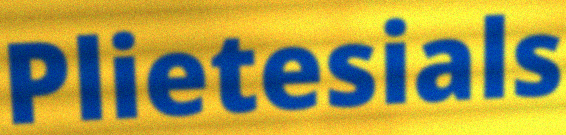
Plietesials